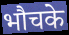
भौचके